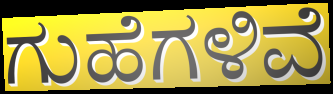
ಗುಹೆಗಳಿವೆ